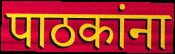
पाठकांना